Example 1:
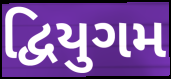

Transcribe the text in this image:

દ્વિયુગમ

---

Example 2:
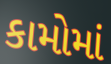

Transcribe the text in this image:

કામોમાં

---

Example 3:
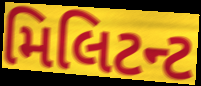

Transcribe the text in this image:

મિલિટન્ટ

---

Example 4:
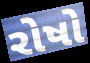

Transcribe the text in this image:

રોષો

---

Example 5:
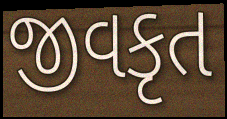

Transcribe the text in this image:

જીવકૃત